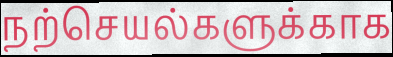
நற்செயல்களுக்காக